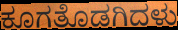
ಕೂಗತೊಡಗಿದಳು